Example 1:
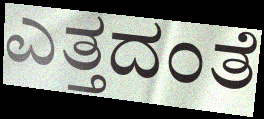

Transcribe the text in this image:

ಎತ್ತದಂತೆ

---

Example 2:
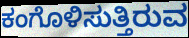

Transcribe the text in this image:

ಕಂಗೊಳಿಸುತ್ತಿರುವ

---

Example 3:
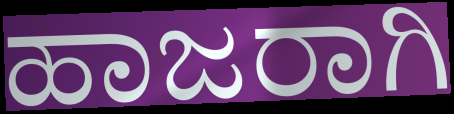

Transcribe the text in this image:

ಹಾಜರಾಗಿ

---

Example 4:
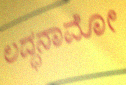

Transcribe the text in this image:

ಲದ್ಧನಾಮೋ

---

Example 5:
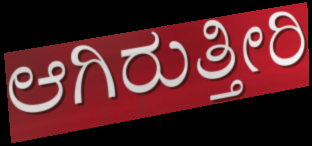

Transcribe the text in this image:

ಆಗಿರುತ್ತೀರಿ